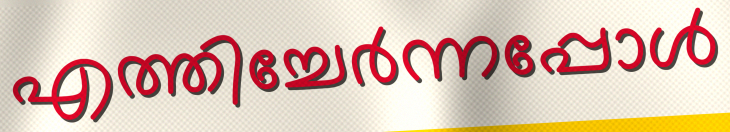
എത്തിച്ചേർന്നപ്പോൾ